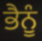
ਭੈਨੂੰ